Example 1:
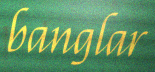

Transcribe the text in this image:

banglar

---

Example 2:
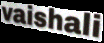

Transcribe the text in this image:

vaishali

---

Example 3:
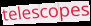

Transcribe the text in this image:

telescopes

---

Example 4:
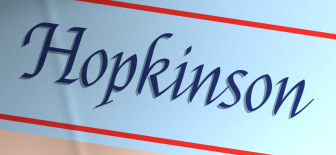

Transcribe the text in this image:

Hopkinson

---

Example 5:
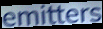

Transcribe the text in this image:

emitters